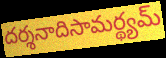
దర్శనాదిసామర్థ్యమ్